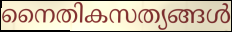
നൈതികസത്യങ്ങൾ